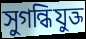
সুগন্ধিযুক্ত